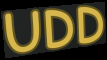
UDD